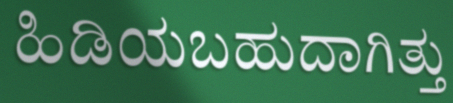
ಹಿಡಿಯಬಹುದಾಗಿತ್ತು